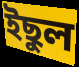
ইছুল